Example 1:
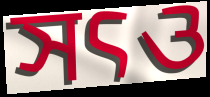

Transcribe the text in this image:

সৎও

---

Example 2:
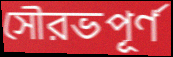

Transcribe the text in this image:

সৌরভপূর্ণ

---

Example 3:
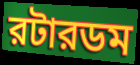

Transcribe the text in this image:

রটারডম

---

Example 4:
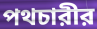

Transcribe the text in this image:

পথচারীর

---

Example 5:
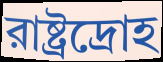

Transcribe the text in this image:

রাষ্ট্রদ্রোহ